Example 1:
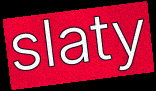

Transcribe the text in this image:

slaty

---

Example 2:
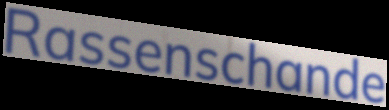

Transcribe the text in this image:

Rassenschande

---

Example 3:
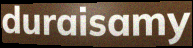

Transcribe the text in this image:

duraisamy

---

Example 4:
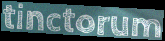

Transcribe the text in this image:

tinctorum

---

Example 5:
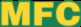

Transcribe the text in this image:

MFC